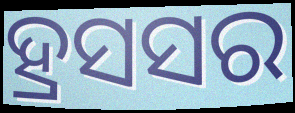
ହ୍ରସସର